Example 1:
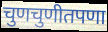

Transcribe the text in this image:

चुणचुणीतपणा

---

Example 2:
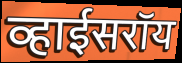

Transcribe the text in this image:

व्हाईसरॉय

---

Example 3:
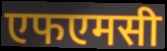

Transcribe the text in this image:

एफएमसी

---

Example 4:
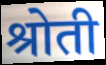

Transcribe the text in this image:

श्रोती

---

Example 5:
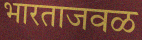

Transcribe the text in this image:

भारताजवळ